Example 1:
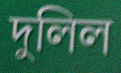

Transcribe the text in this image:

দুলিল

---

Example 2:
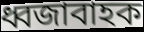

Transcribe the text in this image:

ধ্বজাবাহক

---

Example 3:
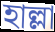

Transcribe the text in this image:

হাল্লা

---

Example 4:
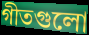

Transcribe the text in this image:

গীতগুলো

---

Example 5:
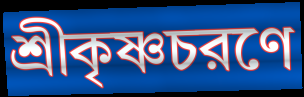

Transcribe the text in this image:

শ্রীকৃষ্ণচরণে